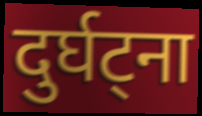
दुर्घट्ना